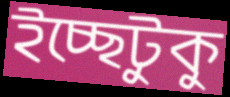
ইচ্ছেটুকু